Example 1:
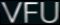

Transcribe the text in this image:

VFU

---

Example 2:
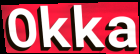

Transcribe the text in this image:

Okka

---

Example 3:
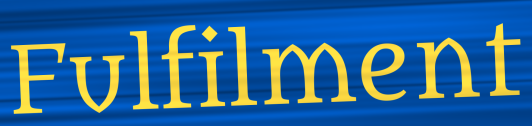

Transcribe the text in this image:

Fulfilment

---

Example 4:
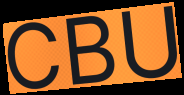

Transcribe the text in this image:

CBU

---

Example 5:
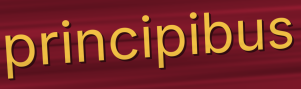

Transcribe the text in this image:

principibus